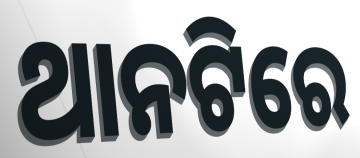
ଥାନଟିରେ